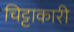
चिट्टाकारी